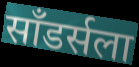
साँडर्सला